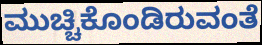
ಮುಚ್ಚಿಕೊಂಡಿರುವಂತೆ